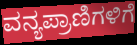
ವನ್ಯಪ್ರಾಣಿಗಳಿಗೆ